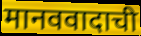
मानववादाची